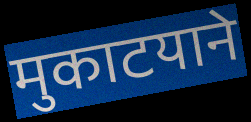
मुकाटयाने